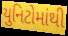
યુનિટોમાંથી